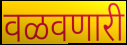
वळवणारी